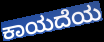
ಕಾಯದೆಯ